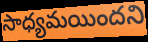
సాధ్యమయిందని